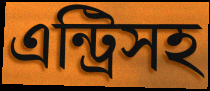
এন্ট্রিসহ